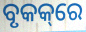
ବୃକକ୍‌ରେ